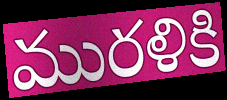
మురళికి